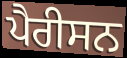
ਪੈਰੀਸਨ